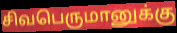
சிவபெருமானுக்கு